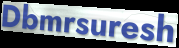
Dbmrsuresh